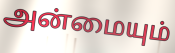
அன்மையும்